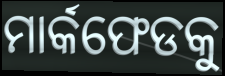
ମାର୍କଫେଡକୁ